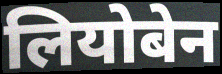
लियोबेन